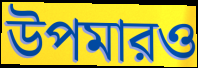
উপমারও